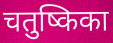
चतुष्किका